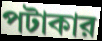
পটাকার